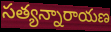
సత్యన్నారాయణ